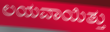
ಲಯವಾಯಿತ್ತು